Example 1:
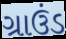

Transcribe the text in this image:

ગ્રાઉંડ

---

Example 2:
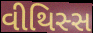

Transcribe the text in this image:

વીથિસ્સ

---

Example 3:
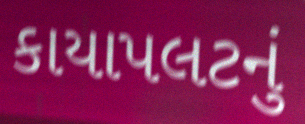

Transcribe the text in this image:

કાયાપલટનું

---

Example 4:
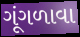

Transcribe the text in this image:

ગૂંગળાવા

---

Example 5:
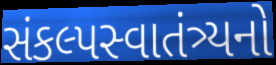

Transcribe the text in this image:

સંકલ્પસ્વાતંત્ર્યનો